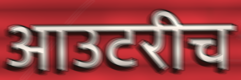
आउटरीच